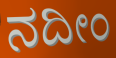
ನದೀಂ